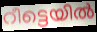
റീട്ടെയിൽ